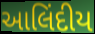
આલિંદીય